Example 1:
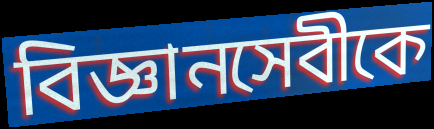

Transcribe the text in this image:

বিজ্ঞানসেবীকে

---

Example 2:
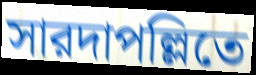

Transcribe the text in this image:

সারদাপল্লিতে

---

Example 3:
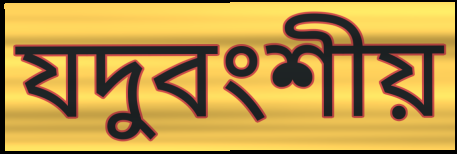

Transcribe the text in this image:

যদুবংশীয়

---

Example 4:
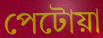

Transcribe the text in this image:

পেটোয়া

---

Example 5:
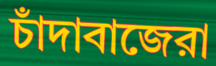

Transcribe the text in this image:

চাঁদাবাজেরা